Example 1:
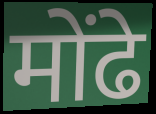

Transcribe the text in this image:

मोंढे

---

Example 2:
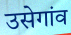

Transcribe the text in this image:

उसेगांव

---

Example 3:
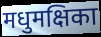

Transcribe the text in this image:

मधुमक्षिका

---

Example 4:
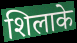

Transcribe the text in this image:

शिलाके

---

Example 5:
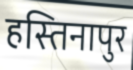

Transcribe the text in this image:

हस्तिनापुर